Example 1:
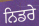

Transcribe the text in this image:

ਨਿਡਰੇ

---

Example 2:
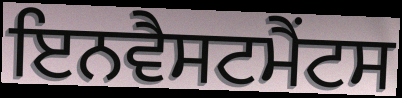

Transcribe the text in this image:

ਇਨਵੈਸਟਮੈਂਟਸ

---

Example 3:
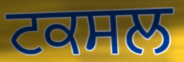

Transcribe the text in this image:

ਟਕਸਲ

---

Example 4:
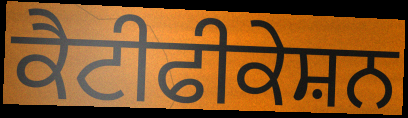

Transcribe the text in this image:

ਕੈਟੀਫੀਕੇਸ਼ਨ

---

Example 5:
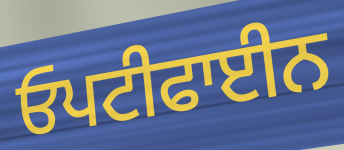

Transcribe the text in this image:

ਓਪਟੀਫਾਈਨ